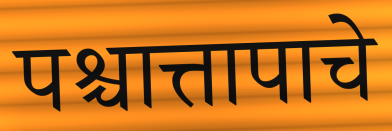
पश्चात्तापाचे